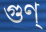
গুণ্